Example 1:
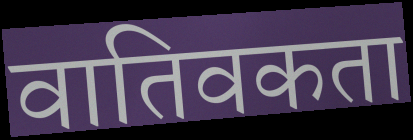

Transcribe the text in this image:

वातिवकता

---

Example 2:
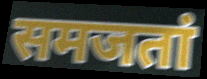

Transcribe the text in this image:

समजतां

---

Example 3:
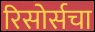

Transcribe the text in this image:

रिसोर्सचा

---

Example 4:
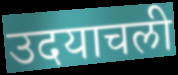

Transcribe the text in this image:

उदयाचली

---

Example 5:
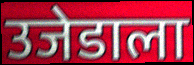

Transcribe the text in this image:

उजेडाला